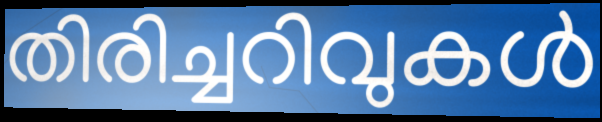
തിരിച്ചറിവുകൾ